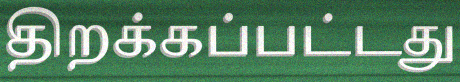
திறக்கப்பட்டது